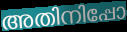
അതിനിപ്പോ